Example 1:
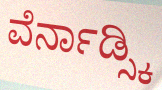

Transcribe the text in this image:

ವೆರ್ನಾಡ್ಸ್ಕಿ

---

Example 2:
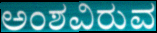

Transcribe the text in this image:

ಅಂಶವಿರುವ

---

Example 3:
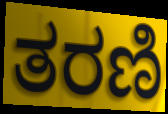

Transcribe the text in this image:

ತರಣಿ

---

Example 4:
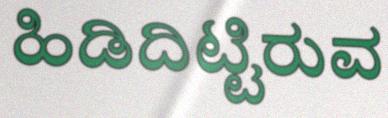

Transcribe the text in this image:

ಹಿಡಿದಿಟ್ಟಿರುವ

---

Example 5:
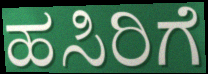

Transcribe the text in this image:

ಹಸಿರಿಗೆ